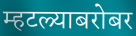
म्हटल्याबरोबर